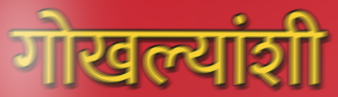
गोखल्यांशी